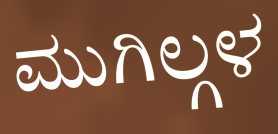
ಮುಗಿಲ್ಗಳ